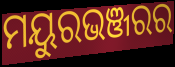
ମୟୁରଭଞ୍ଜରର